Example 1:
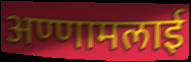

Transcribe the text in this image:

अण्णामलाई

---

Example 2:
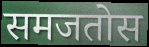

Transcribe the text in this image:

समजतोस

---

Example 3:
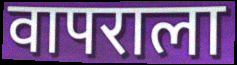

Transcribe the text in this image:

वापराला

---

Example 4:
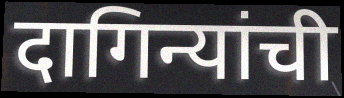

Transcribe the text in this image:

दागिन्यांची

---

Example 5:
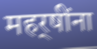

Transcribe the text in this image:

महर्षींना